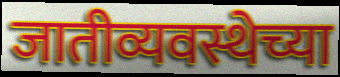
जातीव्यवस्थेच्या